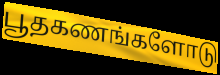
பூதகணங்களோடு